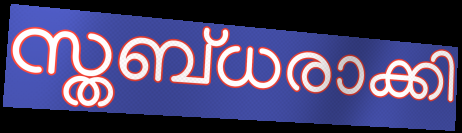
സ്തബ്ധരാക്കി